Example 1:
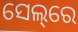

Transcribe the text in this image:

ସେଲ୍‌ରେ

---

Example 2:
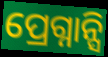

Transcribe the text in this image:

ପ୍ରେଗ୍ନାନ୍ସି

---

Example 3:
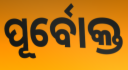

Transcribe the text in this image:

ପୂର୍ବୋକ୍ତ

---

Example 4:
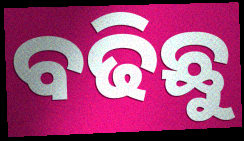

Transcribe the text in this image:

ବଢିଛୁ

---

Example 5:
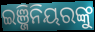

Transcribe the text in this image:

ଇଞ୍ଜିନିୟରଙ୍କୁ